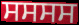
ਸਸਸਸ